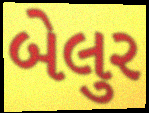
બેલુર